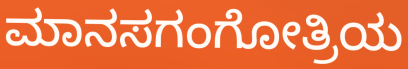
ಮಾನಸಗಂಗೋತ್ರಿಯ